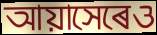
আয়াসেৰেও